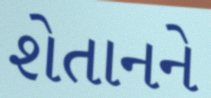
શેતાનને